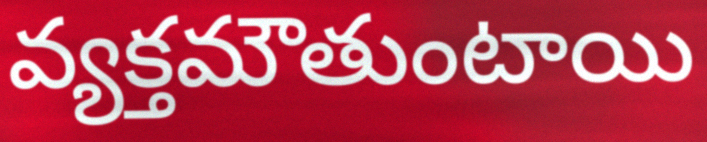
వ్యక్తమౌతుంటాయి